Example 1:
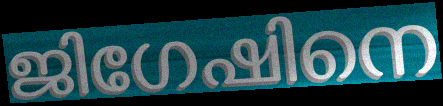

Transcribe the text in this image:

ജിഗേഷിനെ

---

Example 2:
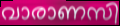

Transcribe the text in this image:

വാരാണസി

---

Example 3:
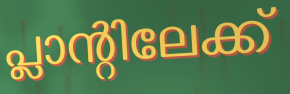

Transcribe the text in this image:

പ്ലാന്റിലേക്ക്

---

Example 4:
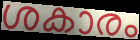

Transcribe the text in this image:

ശകാരം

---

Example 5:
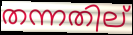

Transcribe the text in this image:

തന്നതില്